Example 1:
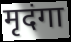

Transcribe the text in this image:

मृदंगा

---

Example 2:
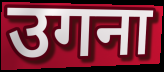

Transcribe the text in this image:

उगना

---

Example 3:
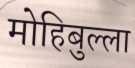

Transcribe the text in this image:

मोहिबुल्ला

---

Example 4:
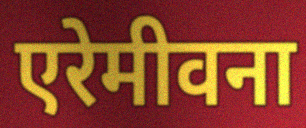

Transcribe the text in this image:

एरेमीवना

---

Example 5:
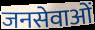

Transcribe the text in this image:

जनसेवाओं